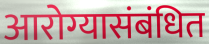
आरोग्यासंबंधित